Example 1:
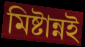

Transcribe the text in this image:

মিষ্টান্নই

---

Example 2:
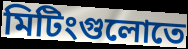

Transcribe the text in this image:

মিটিংগুলোতে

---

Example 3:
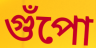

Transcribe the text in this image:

গুঁপো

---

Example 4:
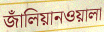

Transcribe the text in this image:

জাঁলিয়ানওয়ালা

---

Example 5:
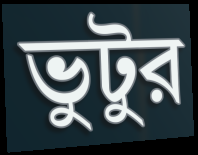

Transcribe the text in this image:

ভুটুর